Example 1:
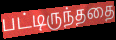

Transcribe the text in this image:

பட்டிருந்ததை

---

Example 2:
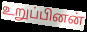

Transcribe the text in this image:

உறுப்பினன்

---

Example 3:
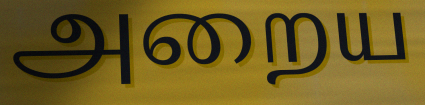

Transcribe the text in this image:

அறைய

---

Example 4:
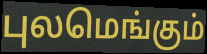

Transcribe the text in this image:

புலமெங்கும்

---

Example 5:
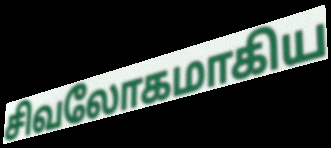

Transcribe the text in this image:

சிவலோகமாகிய